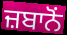
ਜ਼ਬਾਨੋਂ